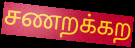
சணறக்கற